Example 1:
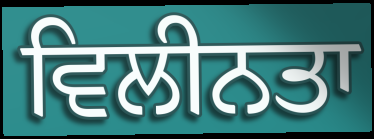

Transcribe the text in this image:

ਵਿਲੀਨਤਾ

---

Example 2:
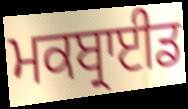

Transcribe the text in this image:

ਮਕਬ੍ਰਾਈਡ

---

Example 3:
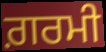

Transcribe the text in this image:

ਗ਼ਰਮੀ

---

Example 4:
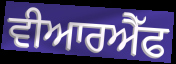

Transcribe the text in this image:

ਵੀਆਰਐੱਫ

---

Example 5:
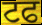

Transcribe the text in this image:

ਟਫ